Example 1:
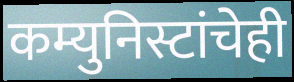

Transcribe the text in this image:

कम्युनिस्टांचेही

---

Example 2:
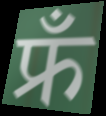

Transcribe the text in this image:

फ्रँ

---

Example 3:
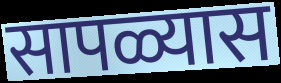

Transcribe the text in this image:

सापळ्यास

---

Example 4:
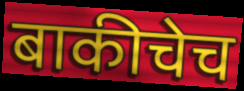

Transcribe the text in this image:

बाकीचेच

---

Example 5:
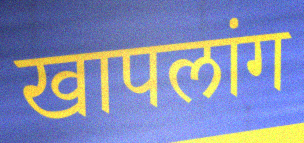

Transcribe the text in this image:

खापलांग